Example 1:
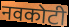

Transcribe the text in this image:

नवकोटी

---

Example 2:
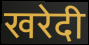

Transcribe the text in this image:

खरेदी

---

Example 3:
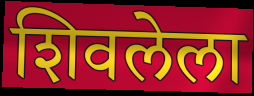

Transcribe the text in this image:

शिवलेला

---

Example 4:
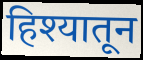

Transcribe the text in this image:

हिश्यातून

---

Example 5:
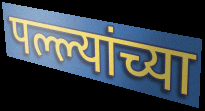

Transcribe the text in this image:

पल्ल्यांच्या